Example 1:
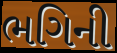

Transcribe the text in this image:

ભગિની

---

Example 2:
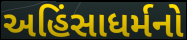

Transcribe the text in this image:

અહિંસાધર્મનો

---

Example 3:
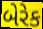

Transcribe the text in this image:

બેરેક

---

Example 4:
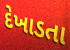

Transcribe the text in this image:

દેખાડતા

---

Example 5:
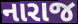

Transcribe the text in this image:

નારાજ